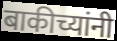
बाकीच्यांनी